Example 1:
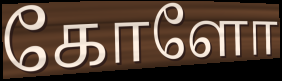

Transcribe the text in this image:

கோளோ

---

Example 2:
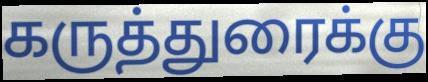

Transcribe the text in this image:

கருத்துரைக்கு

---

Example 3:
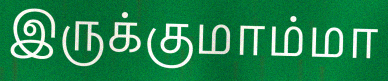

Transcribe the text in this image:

இருக்குமாம்மா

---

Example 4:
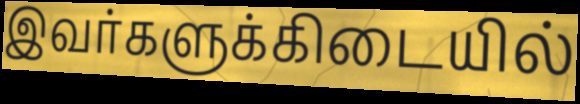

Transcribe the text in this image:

இவர்களுக்கிடையில்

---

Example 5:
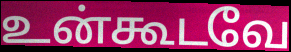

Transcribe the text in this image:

உன்கூடவே